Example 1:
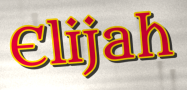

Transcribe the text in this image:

Elijah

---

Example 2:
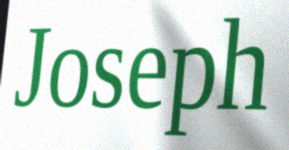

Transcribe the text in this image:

Joseph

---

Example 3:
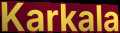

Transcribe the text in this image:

Karkala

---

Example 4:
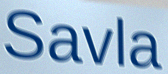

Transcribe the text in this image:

Savla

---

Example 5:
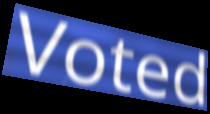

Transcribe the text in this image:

Voted